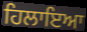
ਹਿਲਾਇਆ